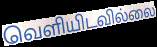
வெளியிடவில்லை